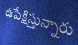
ఉపేక్షిస్తున్నారు